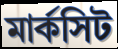
মার্কসিট